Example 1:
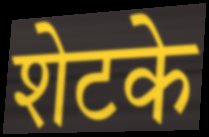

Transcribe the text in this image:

शेटके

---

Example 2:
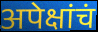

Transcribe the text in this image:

अपेक्षांचं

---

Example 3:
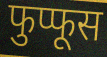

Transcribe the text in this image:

फुप्फूस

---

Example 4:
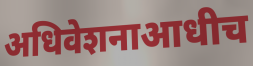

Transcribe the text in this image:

अधिवेशनाआधीच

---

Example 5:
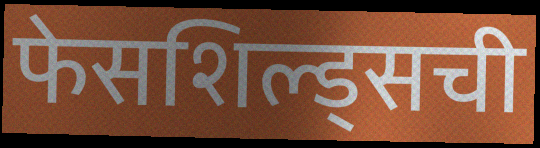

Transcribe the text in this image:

फेसशिल्ड्सची